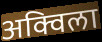
अक्विला